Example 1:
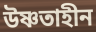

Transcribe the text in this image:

উষ্ণতাহীন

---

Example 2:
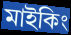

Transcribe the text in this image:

মাইকিং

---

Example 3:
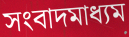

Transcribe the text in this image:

সংবাদমাধ্যম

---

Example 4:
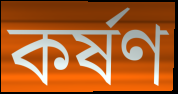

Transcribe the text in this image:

কর্ষণ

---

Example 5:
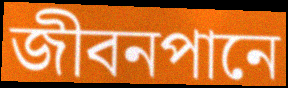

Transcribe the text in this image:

জীবনপানে